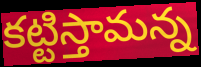
కట్టిస్తామన్న